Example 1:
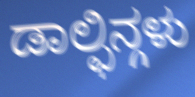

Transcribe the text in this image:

ಡಾಲ್ಫಿನ್ಗಳು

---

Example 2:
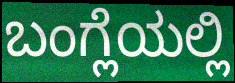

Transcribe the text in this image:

ಬಂಗ್ಲೆಯಲ್ಲಿ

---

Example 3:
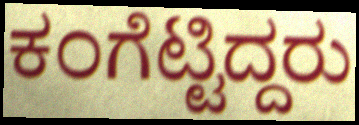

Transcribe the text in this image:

ಕಂಗೆಟ್ಟಿದ್ದರು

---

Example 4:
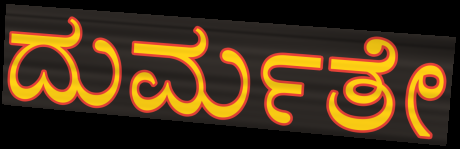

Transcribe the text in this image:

ದುರ್ಮತೇ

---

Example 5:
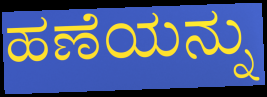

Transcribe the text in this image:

ಹಣೆಯನ್ನು